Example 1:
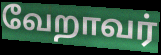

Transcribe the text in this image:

வேறாவர்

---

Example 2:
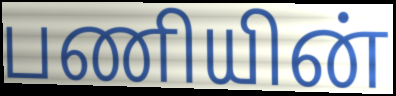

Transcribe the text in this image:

பணியின்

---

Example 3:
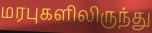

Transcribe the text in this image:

மரபுகளிலிருந்து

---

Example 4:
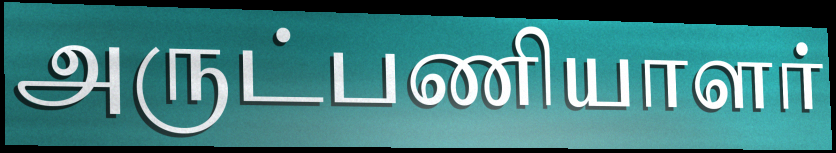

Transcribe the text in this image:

அருட்பணியாளர்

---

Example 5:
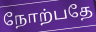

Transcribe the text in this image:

நோற்பதே